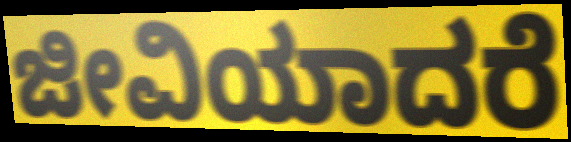
ಜೀವಿಯಾದರೆ